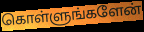
கொள்ளுங்களேன்